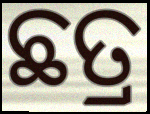
ଛତ୍ର